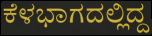
ಕೆಳಭಾಗದಲ್ಲಿದ್ದ